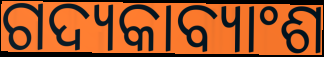
ଗଦ୍ୟକାବ୍ୟାଂଶ